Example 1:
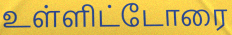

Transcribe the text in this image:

உள்ளிட்டோரை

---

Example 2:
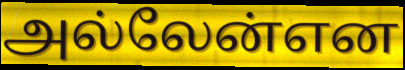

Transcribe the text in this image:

அல்லேன்என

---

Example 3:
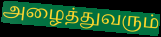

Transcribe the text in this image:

அழைத்துவரும்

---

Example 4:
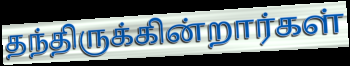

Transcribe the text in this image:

தந்திருக்கின்றார்கள்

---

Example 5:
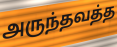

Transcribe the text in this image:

அருந்தவத்த